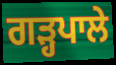
ਗੜ੍ਹਪਾਲੇ